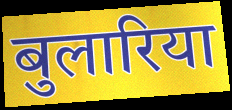
बुलारिया